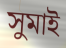
সুমাই